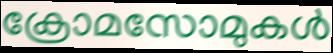
ക്രോമസോമുകൾ